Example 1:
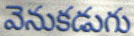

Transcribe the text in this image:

వెనుకడుగు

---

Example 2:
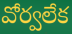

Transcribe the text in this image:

వోర్వలేక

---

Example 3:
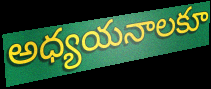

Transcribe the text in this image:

అధ్యయనాలకూ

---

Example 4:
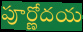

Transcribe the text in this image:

పూర్ణోదయ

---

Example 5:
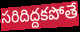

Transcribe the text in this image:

సరిదిద్దకపోతే